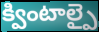
క్వింటాల్పై